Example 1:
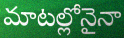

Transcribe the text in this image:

మాటల్లోనైనా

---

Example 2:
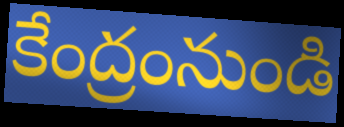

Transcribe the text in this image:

కేంద్రంనుండి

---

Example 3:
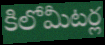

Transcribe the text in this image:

కిలోమీటర్ల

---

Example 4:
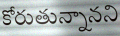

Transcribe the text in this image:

కోరుతున్నానని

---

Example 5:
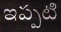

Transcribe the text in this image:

ఇప్పటి